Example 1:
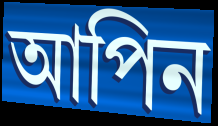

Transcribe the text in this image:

আপিন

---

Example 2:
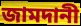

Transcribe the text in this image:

জামদানী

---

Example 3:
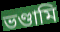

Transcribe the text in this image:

ভণ্ডামি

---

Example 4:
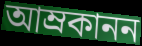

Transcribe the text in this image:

আম্রকানন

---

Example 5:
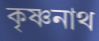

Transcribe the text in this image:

কৃষ্ণনাথ